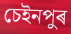
চেইনপুৰ